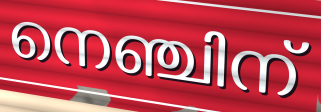
നെഞ്ചിന്